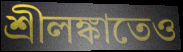
শ্রীলঙ্কাতেও